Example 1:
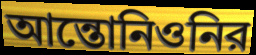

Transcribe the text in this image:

আন্তোনিওনির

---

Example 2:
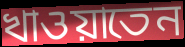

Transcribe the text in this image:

খাওয়াতেন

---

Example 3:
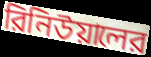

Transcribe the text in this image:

রিনিউয়ালের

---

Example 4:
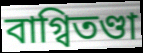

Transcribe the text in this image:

বাগ্বিতণ্ডা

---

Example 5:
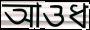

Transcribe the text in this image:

আওধ